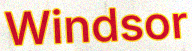
Windsor